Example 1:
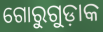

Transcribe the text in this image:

ଗୋରୁଗୁଡ଼ାକ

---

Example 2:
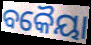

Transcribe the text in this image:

ବକୈୟା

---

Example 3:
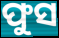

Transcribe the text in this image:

ଫୁସ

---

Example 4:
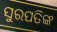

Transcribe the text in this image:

ସୁରପତିଙ୍କ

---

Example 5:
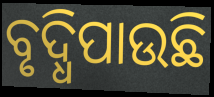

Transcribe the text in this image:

ବୃଦ୍ଧିପାଉଛି